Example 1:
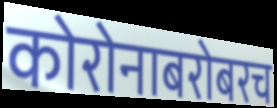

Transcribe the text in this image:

कोरोनाबरोबरच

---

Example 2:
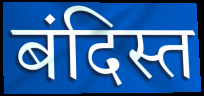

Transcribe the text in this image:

बंदिस्त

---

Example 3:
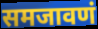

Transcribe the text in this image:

समजावणं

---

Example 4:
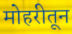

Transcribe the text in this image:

मोहरीतून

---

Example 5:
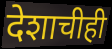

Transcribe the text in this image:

देशाचीही